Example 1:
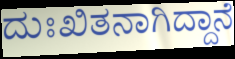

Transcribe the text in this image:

ದುಃಖಿತನಾಗಿದ್ದಾನೆ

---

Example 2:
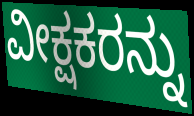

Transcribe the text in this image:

ವೀಕ್ಷಕರನ್ನು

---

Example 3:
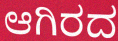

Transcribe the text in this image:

ಆಗಿರದ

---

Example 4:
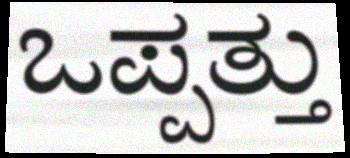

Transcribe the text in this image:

ಒಪ್ಪತ್ತು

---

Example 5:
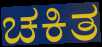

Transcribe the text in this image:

ಚಕಿತ